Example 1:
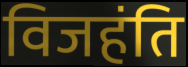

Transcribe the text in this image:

विजहंति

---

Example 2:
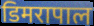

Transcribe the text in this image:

डिमरापाल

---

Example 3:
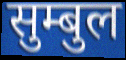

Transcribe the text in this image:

सुम्बुल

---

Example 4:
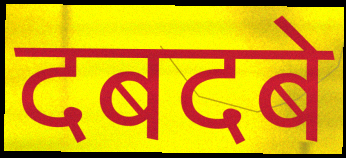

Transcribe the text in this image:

दबदबे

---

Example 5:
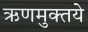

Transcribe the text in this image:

ऋणमुक्तये